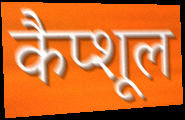
कैप्शूल